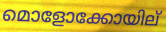
മൊളോക്കോയില്